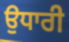
ਉਧਾਰੀ